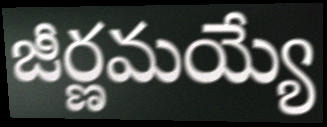
జీర్ణమయ్యే